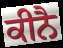
ਕੀਨੈ